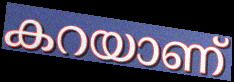
കറയാണ്